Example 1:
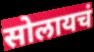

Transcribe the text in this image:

सोलायचं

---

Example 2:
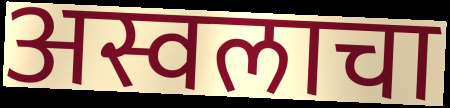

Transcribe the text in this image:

अस्वलाचा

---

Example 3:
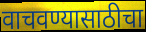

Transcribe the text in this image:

वाचवण्यासाठीचा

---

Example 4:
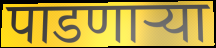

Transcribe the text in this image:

पाडणाऱ्या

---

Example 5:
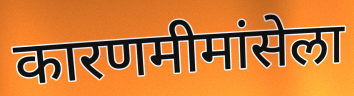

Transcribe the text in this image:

कारणमीमांसेला